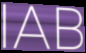
IAB